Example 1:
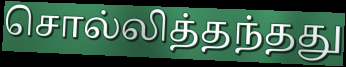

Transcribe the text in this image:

சொல்லித்தந்தது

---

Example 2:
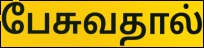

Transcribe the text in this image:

பேசுவதால்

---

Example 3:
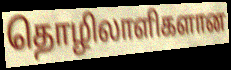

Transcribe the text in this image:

தொழிலாளிகளான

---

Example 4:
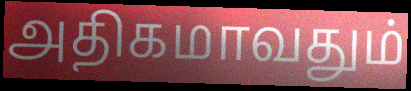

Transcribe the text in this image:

அதிகமாவதும்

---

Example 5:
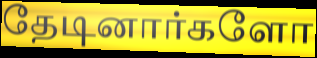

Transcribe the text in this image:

தேடினார்களோ